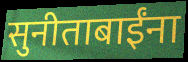
सुनीताबाईंना